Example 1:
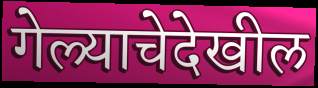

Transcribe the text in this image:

गेल्याचेदेखील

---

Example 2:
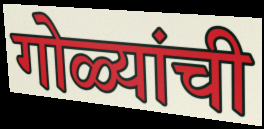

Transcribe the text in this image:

गोळ्यांची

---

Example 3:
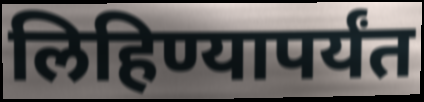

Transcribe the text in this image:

लिहिण्यापर्यंत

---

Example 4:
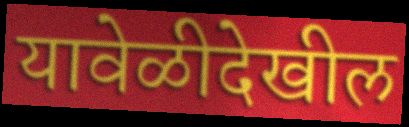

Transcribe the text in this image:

यावेळीदेखील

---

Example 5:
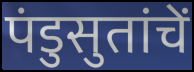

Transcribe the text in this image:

पंडुसुतांचें